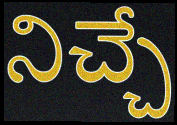
నిచ్చే